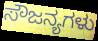
ಸೌಜನ್ಯಗಳು